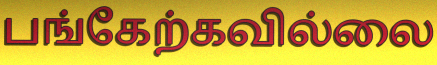
பங்கேற்கவில்லை